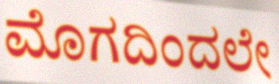
ಮೊಗದಿಂದಲೇ